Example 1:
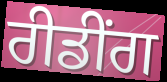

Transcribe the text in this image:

ਰੀਡੀਂਗ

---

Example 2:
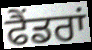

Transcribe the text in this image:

ਫੈਂਡਰਾਂ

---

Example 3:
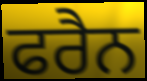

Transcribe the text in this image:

ਫਰੈਨ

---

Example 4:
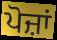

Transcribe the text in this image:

ਪੋਜ਼ਾਂ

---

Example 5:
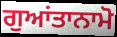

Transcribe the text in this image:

ਗੁਆਂਤਾਨਾਮੋ